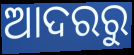
ଆଦରରୁ